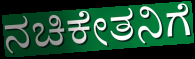
ನಚಿಕೇತನಿಗೆ